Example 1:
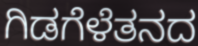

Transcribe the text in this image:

ಗಿಡಗೆಳೆತನದ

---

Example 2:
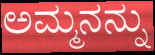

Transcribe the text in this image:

ಅಮ್ಮನನ್ನು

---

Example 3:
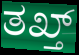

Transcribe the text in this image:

ತಖ್ತ್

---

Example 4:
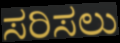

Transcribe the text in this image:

ಸರಿಸಲು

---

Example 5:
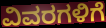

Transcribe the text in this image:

ವಿವರಗಳಿಗೆ